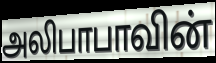
அலிபாபாவின்